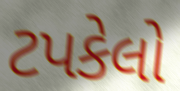
ટપકેલો